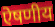
ऐषणीय